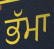
ਭੱਮਾ